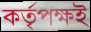
কৰ্তৃপক্ষই